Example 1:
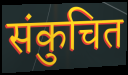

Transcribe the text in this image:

संकुचित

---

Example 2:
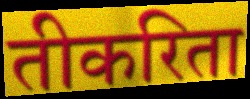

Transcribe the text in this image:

तीकरिता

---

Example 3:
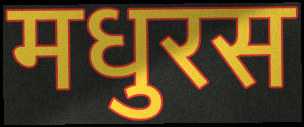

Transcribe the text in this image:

मधुरस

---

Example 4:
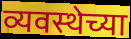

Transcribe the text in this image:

व्यवस्थेच्या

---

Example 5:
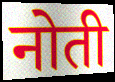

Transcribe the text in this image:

नोती